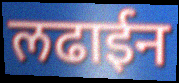
लढाईन